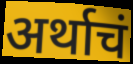
अर्थाचं